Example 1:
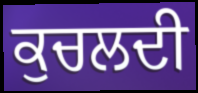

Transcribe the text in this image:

ਕੁਚਲਦੀ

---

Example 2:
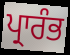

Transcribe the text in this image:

ਪ੍ਰਾਰੰਭ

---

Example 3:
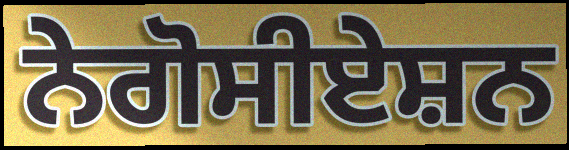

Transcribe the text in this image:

ਨੇਗੋਸੀਏਸ਼ਨ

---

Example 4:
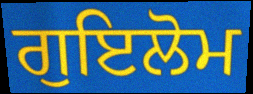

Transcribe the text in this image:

ਗੁਇਲੋਮ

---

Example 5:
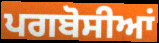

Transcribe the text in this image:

ਪਗਬੋਸੀਆਂ